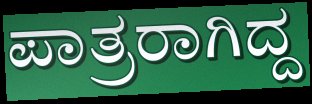
ಪಾತ್ರರಾಗಿದ್ದ